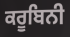
ਕਰੂਬਿਨੀ